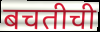
बचतीची